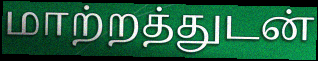
மாற்றத்துடன்